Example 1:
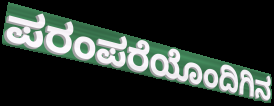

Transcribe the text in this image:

ಪರಂಪರೆಯೊಂದಿಗಿನ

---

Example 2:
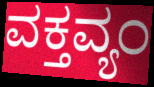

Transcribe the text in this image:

ವಕ್ತವ್ಯಂ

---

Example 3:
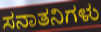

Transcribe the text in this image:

ಸನಾತನಿಗಳು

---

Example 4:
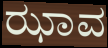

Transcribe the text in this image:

ಝಾವ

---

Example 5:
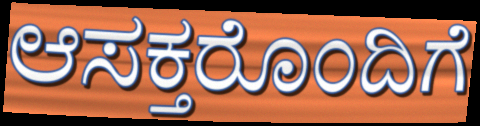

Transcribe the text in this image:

ಆಸಕ್ತರೊಂದಿಗೆ